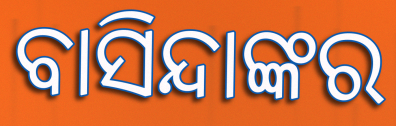
ବାସିନ୍ଦାଙ୍କର